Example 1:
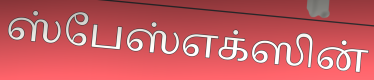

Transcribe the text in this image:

ஸ்பேஸ்எக்ஸின்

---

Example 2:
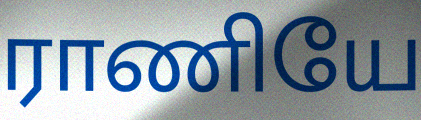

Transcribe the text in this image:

ராணியே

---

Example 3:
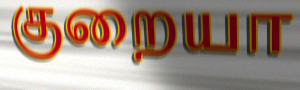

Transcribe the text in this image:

குறையா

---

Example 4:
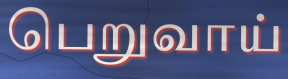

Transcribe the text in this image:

பெறுவாய்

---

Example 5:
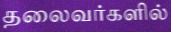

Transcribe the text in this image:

தலைவர்களில்